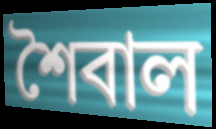
শৈবাল